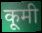
कूमी